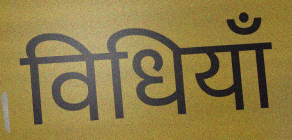
विधियाँ